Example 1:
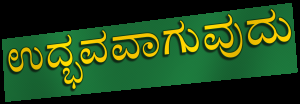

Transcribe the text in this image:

ಉದ್ಭವವಾಗುವುದು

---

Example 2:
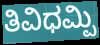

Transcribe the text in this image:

ತಿವಿಧಮ್ಪಿ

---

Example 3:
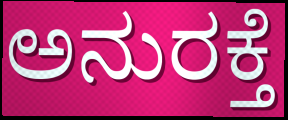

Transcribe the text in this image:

ಅನುರಕ್ತೆ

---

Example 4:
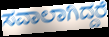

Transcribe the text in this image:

ಸವಾಲಾಗಿದ್ದರೆ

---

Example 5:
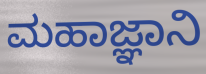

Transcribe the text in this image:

ಮಹಾಜ್ಞಾನಿ